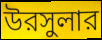
উরসুলার